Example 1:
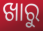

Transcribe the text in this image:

ଖାରୁ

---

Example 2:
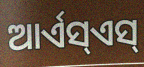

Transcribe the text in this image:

ଆର୍ଏସ୍ଏସ୍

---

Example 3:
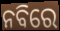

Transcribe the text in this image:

ନବିରେ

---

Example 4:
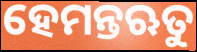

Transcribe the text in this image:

ହେମନ୍ତଋତୁ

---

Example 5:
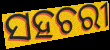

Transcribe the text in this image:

ସହଚରୀ